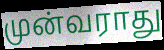
முன்வராது